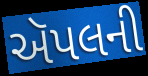
ઍપલની